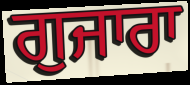
ਗੁਜਾਰਾ